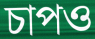
চাপও